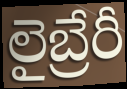
లైబ్రేరీ